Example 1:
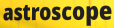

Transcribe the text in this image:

astroscope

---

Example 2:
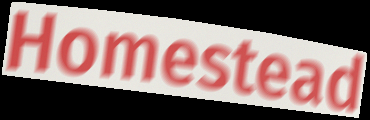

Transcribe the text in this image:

Homestead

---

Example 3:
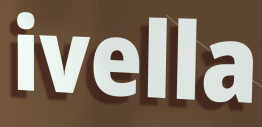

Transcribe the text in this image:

ivella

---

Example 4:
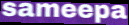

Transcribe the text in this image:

sameepa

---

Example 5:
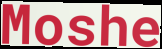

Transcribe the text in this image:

Moshe